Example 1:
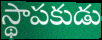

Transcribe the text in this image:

స్థాపకుడు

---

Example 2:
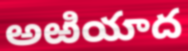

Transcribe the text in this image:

అఱియాద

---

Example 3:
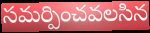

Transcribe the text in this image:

సమర్పించవలసిన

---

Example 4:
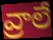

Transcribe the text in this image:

వ్రాలే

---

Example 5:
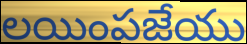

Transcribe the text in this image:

లయింపజేయు